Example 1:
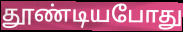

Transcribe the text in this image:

தூண்டியபோது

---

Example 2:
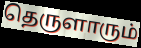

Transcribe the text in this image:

தெருளாரும்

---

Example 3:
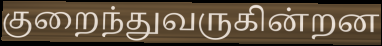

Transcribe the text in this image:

குறைந்துவருகின்றன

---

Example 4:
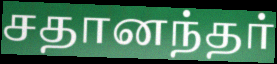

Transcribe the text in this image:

சதானந்தர்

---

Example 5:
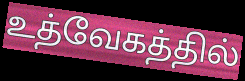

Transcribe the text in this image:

உத்வேகத்தில்